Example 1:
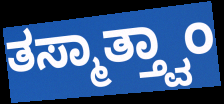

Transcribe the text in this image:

ತಸ್ಮಾತ್ತ್ವಾಂ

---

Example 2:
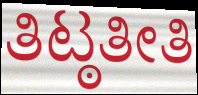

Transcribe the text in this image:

ತಿಟ್ಠತೀತಿ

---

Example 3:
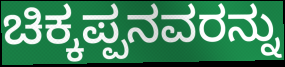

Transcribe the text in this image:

ಚಿಕ್ಕಪ್ಪನವರನ್ನು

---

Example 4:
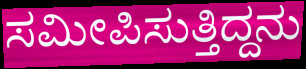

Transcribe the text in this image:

ಸಮೀಪಿಸುತ್ತಿದ್ದನು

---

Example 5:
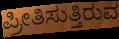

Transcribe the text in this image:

ಪ್ರೀತಿಸುತ್ತಿರುವ